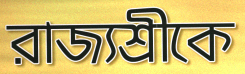
রাজ্যশ্রীকে